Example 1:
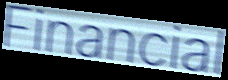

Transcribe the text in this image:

Financial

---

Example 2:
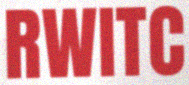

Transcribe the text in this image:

RWITC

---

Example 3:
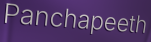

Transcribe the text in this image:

Panchapeeth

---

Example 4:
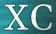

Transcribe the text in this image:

XC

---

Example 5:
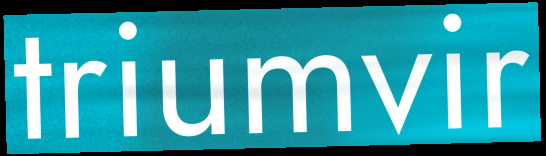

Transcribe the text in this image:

triumvir